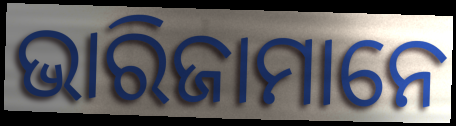
ଭାରିଜାମାନେ